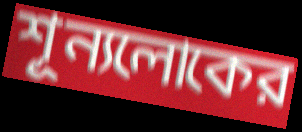
শূন্যলোকের